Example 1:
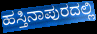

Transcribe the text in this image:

ಹಸ್ತಿನಾಪುರದಲ್ಲಿ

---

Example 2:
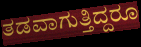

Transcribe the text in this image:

ತಡವಾಗುತ್ತಿದ್ದರೂ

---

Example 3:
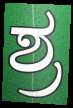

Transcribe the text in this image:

ಶ್ರ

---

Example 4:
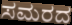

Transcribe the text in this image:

ಸಮರದ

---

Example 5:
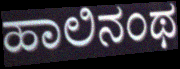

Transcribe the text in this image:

ಹಾಲಿನಂಥ